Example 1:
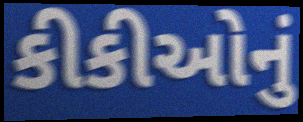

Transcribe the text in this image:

કીકીઓનું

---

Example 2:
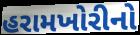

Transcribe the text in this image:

હરામખોરીનો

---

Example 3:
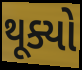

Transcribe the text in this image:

થૂક્યો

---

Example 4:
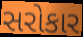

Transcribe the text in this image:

સરોકાર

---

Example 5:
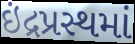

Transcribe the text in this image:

ઇંદ્રપ્રસ્થમાં